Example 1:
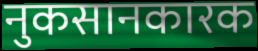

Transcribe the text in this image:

नुकसानकारक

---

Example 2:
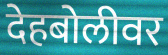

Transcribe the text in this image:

देहबोलीवर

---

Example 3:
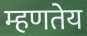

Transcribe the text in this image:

म्हणतेय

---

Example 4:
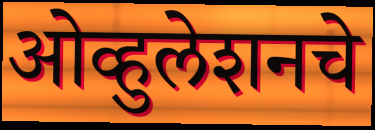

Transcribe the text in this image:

ओव्हुलेशनचे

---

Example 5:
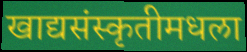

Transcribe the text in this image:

खाद्यसंस्कृतीमधला